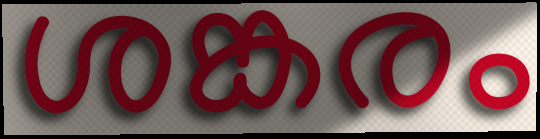
ശങ്കരം